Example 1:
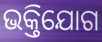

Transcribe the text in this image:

ଭକ୍ତିଯୋଗ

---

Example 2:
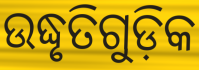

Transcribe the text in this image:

ଉଦ୍ଧୃତିଗୁଡ଼ିକ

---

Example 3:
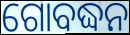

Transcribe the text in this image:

ଗୋବଦ୍ଧନ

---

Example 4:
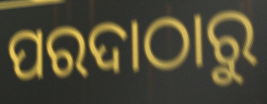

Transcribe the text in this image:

ପରଦାଠାରୁ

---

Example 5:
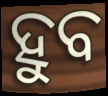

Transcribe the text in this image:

ହୁବ